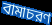
বামাচরণ